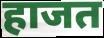
हाजत